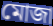
মোজা